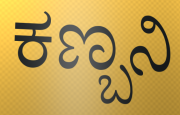
ಕಣ್ಬನಿ